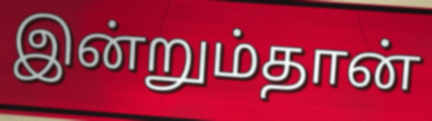
இன்றும்தான்